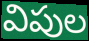
విపుల